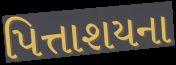
પિત્તાશયના